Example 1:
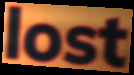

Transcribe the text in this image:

lost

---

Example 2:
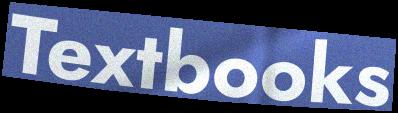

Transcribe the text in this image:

Textbooks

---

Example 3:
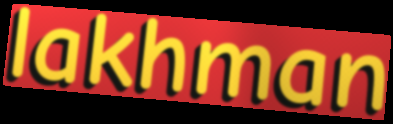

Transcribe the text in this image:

lakhman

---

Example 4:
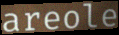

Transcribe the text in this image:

areole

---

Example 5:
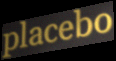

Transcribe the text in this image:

placebo